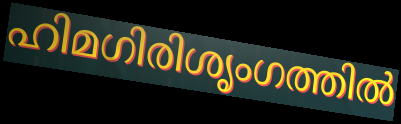
ഹിമഗിരിശൃംഗത്തിൽ